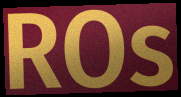
ROs